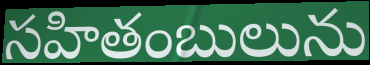
సహితంబులును